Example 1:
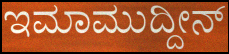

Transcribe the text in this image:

ಇಮಾಮುದ್ದೀನ್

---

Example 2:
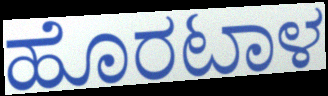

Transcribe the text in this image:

ಹೊರಟಾಳ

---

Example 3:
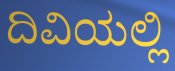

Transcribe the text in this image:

ದಿವಿಯಲ್ಲಿ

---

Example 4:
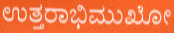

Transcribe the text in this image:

ಉತ್ತರಾಭಿಮುಖೋ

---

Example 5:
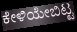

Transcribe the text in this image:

ಕೇಳಿಯೇಬಿಟ್ಟ